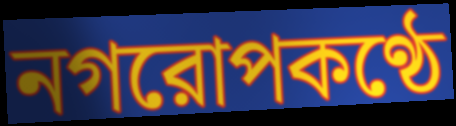
নগরোপকণ্ঠে